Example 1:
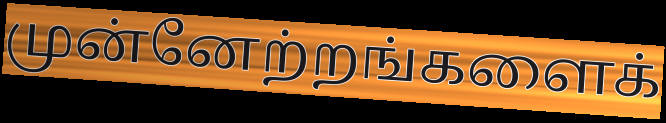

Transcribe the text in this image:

முன்னேற்றங்களைக்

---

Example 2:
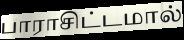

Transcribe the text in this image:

பாராசிட்டமால்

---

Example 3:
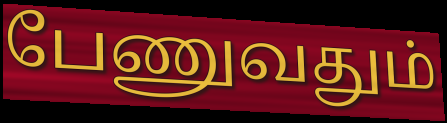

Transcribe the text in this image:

பேணுவதும்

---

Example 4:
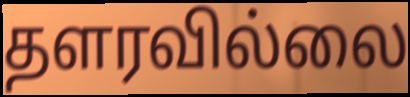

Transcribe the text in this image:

தளரவில்லை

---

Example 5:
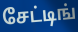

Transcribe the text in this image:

சேட்டிங்